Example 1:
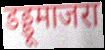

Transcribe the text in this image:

डड्डूमाजरा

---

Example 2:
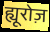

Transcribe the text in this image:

ह्यूरोज़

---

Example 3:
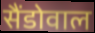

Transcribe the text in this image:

सैंडोवाल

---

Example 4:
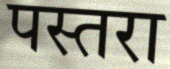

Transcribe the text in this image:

पस्तरा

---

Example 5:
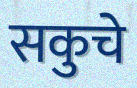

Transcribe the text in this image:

सकुचे